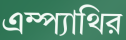
এম্প্যাথির